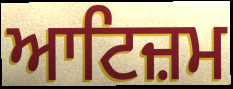
ਆਟਿਜ਼ਮ